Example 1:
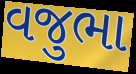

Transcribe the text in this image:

વજુભા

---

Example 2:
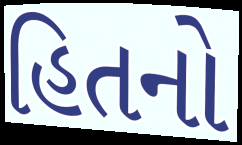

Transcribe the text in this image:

હિતનો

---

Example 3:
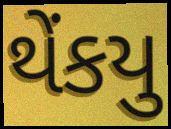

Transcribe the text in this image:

થેંકયુ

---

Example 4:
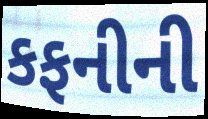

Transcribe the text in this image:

કફનીની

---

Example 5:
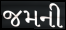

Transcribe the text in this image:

જમની